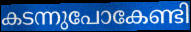
കടന്നുപോകേണ്ടി